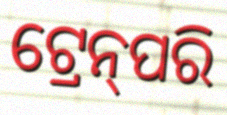
ଟ୍ରେନ୍‌ପରି